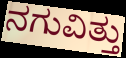
ನಗುವಿತ್ತು